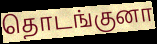
தொடங்குனா